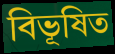
বিভূষিত